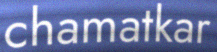
chamatkar